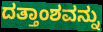
ದತ್ತಾಂಶವನ್ನು